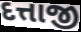
દત્તાજી